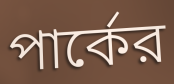
পার্কের